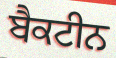
ਬੈਕਟੀਨ